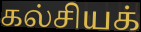
கல்சியக்